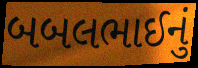
બબલભાઈનું